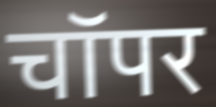
चॉपर